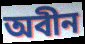
অবীন